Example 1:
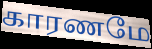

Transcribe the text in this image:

காரணமே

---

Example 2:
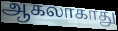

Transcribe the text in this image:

ஆகலாகாது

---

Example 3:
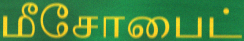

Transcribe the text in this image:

மீசோபைட்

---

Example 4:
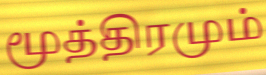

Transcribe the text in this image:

மூத்திரமும்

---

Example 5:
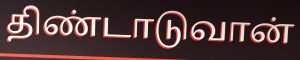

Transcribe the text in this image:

திண்டாடுவான்